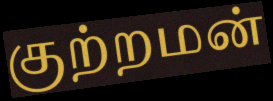
குற்றமன்